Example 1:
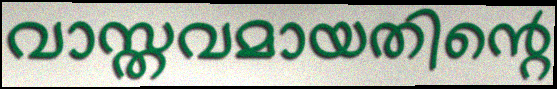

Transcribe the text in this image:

വാസ്തവമായതിന്റെ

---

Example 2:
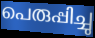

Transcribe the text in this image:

പെരുപ്പിച്ചു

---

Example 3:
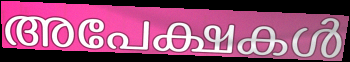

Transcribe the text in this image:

അപേക്ഷകൾ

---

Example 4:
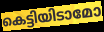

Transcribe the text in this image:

കെട്ടിയിടാമോ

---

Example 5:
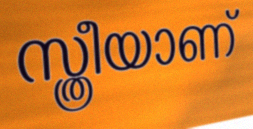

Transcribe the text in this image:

സ്ത്രീയാണ്